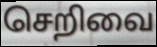
செறிவை